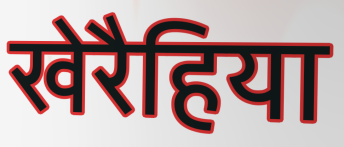
खेरैहिया